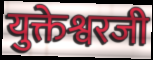
युक्तेश्वरजी